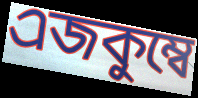
এজকুম্বে